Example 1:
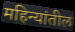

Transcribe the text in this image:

महिन्यांतील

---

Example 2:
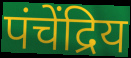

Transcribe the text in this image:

पंचेंद्रिय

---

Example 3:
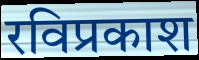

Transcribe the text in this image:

रविप्रकाश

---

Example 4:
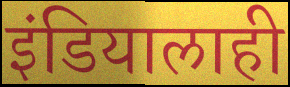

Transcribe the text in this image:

इंडियालाही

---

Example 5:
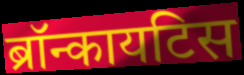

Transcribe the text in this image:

ब्रॉन्कायटिस